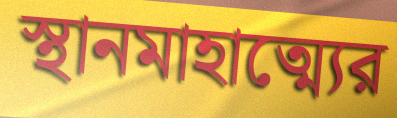
স্থানমাহাত্ম্যের